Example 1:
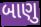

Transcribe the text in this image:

બાણુ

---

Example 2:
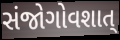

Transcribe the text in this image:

સંજોગોવશાત્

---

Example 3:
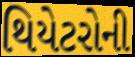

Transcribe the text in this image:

થિયેટરોની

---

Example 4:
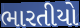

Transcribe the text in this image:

ભારતીયો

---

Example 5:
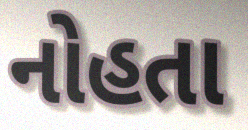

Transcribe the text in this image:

નોહતા